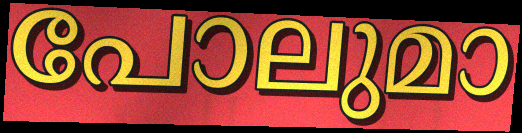
പോലുമാ